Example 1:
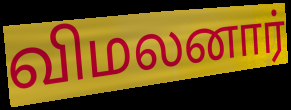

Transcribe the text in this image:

விமலனார்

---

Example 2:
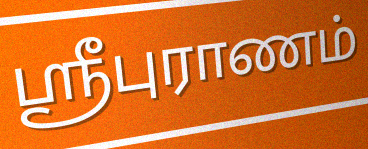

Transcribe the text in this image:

ஸ்ரீபுராணம்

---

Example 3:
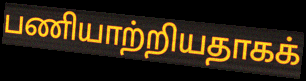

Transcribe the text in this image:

பணியாற்றியதாகக்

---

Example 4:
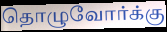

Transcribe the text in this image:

தொழுவோர்க்கு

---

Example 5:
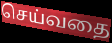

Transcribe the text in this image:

செய்வதை